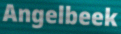
Angelbeek